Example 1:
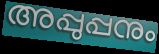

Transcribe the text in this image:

അപ്പുപ്പനും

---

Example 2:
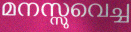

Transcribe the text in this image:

മനസ്സുവെച്ച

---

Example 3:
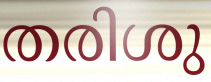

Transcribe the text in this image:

തരിശു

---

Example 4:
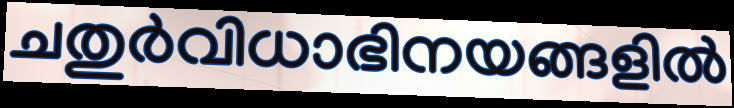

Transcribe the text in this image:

ചതുർവിധാഭിനയങ്ങളിൽ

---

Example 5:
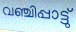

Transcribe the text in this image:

വഞ്ചിപ്പാട്ടു്